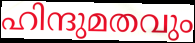
ഹിന്ദുമതവും